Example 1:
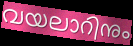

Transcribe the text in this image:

വയലാറിനും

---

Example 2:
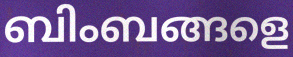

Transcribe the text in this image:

ബിംബങ്ങളെ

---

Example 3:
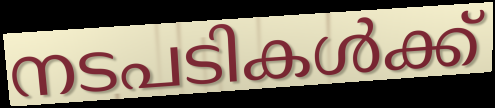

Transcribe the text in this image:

നടപടികൾക്ക്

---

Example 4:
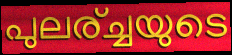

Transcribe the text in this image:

പുലര്ച്ചയുടെ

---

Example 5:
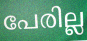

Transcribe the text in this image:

പേരില്ല